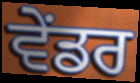
ਵੇਂਡਰ